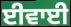
ਈਵਾਈ